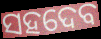
ସହଦେବ